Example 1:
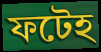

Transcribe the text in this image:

ফটেহ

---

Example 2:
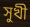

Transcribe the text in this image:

সুখী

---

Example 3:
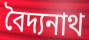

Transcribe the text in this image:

বৈদ্যনাথ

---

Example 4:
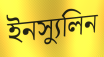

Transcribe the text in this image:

ইনস্যুলিন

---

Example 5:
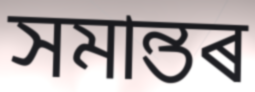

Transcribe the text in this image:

সমান্তৰ